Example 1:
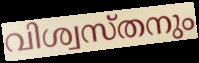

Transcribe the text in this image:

വിശ്വസ്തനും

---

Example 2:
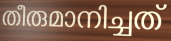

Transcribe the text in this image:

തീരുമാനിച്ചത്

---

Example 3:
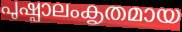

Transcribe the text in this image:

പുഷ്പാലംകൃതമായ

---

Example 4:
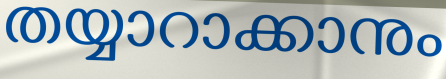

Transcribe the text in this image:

തയ്യാറാക്കാനും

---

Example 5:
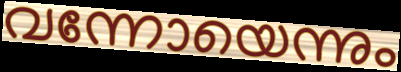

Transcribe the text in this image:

വന്നോയെന്നും